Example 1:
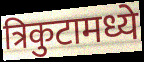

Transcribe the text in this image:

त्रिकुटामध्ये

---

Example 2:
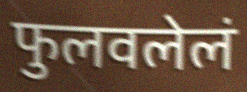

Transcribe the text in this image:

फुलवलेलं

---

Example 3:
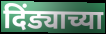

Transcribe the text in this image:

दिंड्याच्या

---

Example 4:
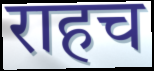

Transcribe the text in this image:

राहच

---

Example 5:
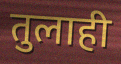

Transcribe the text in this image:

तुलाही